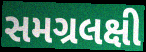
સમગ્રલક્ષી